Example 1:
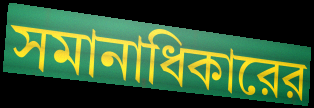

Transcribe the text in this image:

সমানাধিকারের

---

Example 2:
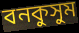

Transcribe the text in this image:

বনকুসুম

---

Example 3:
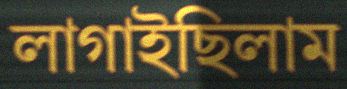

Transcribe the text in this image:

লাগাইছিলাম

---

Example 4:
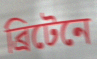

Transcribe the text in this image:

ব্রিটেনে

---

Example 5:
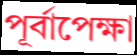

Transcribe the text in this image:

পূর্বাপেক্ষা